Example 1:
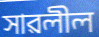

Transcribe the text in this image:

সাৱলীল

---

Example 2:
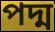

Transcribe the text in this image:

পদ্ম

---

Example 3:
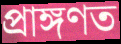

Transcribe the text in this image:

প্ৰাঙ্গণত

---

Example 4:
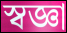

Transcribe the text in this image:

স্বজ্ঞা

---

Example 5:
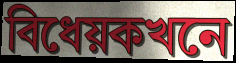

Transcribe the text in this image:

বিধেয়কখনে